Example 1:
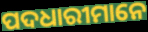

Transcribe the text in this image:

ପଦଧାରୀମାନେ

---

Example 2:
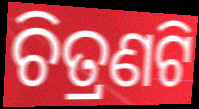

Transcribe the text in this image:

ଚିତ୍ରଣଟି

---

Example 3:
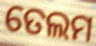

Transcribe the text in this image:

ତେଲମ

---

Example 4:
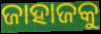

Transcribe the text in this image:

ଜାହାଜକୁ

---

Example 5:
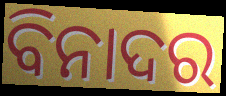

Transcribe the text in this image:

ବିନାଦର